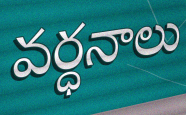
వర్ధనాలు